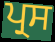
ਪ੍ਰਸ